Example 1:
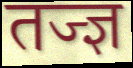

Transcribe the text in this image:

तज्‍ज्ञ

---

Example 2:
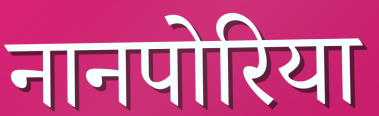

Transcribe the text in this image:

नानपोरिया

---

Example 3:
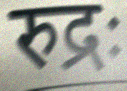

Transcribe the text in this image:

रुद्रः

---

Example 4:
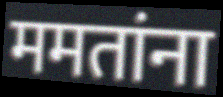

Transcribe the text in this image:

ममतांना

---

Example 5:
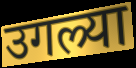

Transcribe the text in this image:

उगल्या